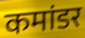
कमांडर